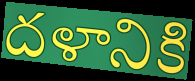
దళానికి